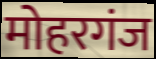
मोहरगंज